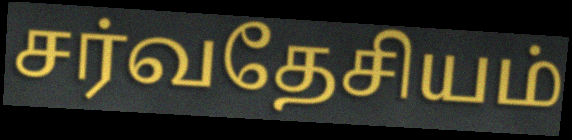
சர்வதேசியம்